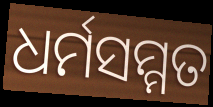
ଧର୍ମସମ୍ମତ